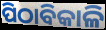
ପିଠାବିକାଳି